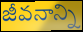
జీవనాన్ని